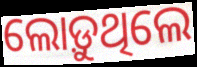
ଲୋଡ଼ୁଥିଲେ